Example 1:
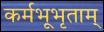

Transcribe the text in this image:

कर्मभूभृताम्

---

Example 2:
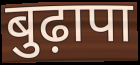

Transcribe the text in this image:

बुढ़ापा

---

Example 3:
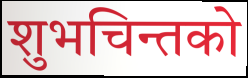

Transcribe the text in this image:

शुभचिन्तको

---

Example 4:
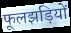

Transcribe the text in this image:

फूलझड़ियों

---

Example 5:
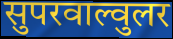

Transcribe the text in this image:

सुपरवाल्वुलर